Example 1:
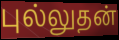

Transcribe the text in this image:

புல்லுதன்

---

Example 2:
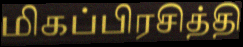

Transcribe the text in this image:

மிகப்பிரசித்தி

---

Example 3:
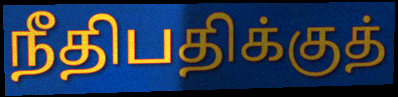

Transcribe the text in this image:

நீதிபதிக்குத்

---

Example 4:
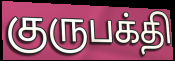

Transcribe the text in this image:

குருபக்தி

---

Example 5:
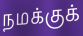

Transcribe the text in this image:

நமக்குக்